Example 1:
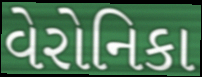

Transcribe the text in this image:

વેરોનિકા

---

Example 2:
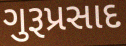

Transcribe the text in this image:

ગુરૂપ્રસાદ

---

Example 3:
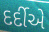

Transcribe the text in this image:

દર્દીએ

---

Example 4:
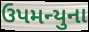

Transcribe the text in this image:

ઉપમન્યુના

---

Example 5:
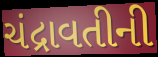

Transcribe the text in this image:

ચંદ્રાવતીની